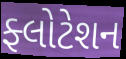
ફ્લોટેશન